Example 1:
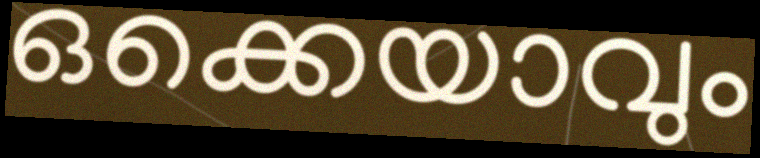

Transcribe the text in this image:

ഒക്കെയാവും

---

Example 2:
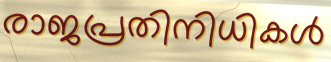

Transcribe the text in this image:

രാജപ്രതിനിധികൾ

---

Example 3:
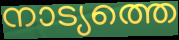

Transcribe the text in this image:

നാട്യത്തെ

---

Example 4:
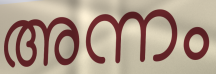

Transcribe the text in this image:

അന്നം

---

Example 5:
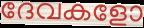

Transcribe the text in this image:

ദേവകളോ